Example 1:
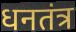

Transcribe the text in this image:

धनतंत्र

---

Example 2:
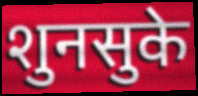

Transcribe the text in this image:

शुनसुके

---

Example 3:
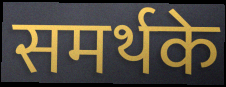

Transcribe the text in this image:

समर्थके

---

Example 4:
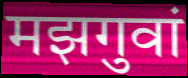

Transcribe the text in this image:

मझगुवां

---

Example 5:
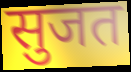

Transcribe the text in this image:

सुजत